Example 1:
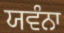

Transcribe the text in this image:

ਯਵੰਨਾ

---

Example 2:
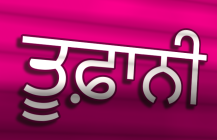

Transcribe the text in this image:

ਤੂਫ਼ਾਨੀ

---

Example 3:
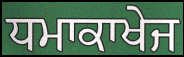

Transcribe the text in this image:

ਧਮਾਕਾਖੇਜ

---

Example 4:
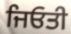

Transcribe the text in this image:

ਜਿਓਤੀ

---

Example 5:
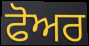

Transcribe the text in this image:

ਫੋਅਰ